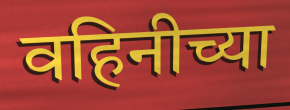
वहिनीच्या